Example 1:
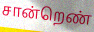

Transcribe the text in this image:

சான்றெண்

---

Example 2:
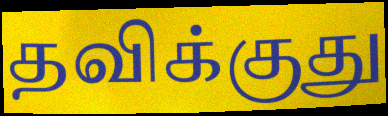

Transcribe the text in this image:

தவிக்குது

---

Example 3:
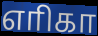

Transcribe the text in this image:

எரிகா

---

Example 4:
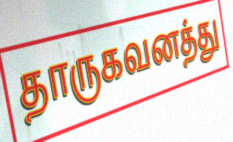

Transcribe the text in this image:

தாருகவனத்து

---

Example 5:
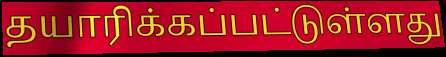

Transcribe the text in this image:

தயாரிக்கப்பட்டுள்ளது